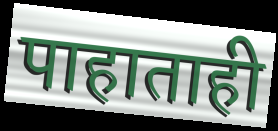
पाहाताही